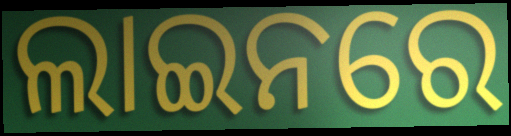
ଲାଇନରେ